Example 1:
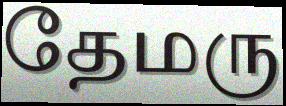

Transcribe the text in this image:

தேமரு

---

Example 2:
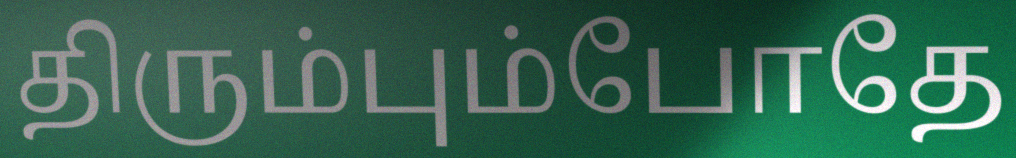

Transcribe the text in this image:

திரும்பும்போதே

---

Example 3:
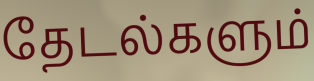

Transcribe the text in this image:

தேடல்களும்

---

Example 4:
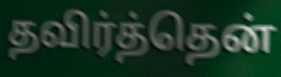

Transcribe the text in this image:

தவிர்த்தென்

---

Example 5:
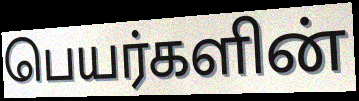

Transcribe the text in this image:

பெயர்களின்